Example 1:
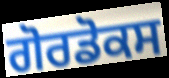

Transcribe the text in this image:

ਗੋਰਡੋਕਸ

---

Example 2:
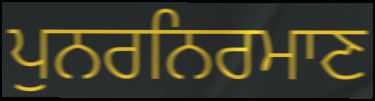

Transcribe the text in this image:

ਪੁਨਰਨਿਰਮਾਣ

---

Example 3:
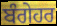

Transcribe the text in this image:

ਬੰਗੇਹਰ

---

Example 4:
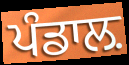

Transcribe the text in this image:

ਪੰਡਾਲ਼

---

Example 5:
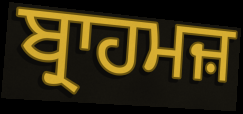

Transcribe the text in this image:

ਬ੍ਰਾਹਮਜ਼